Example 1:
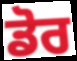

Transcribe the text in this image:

ਡੋਰ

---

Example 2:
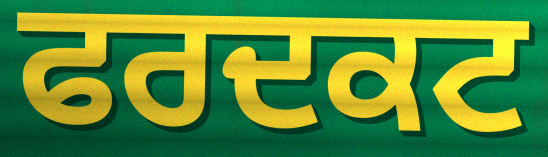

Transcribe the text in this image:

ਫਰਦਕਟ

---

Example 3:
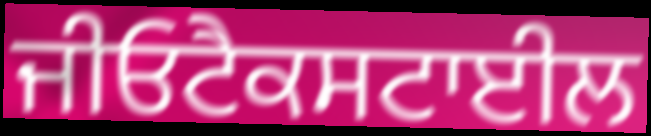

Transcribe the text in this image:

ਜੀਓਟੈਕਸਟਾਈਲ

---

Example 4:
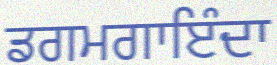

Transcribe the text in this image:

ਡਗਮਗਾਇੰਦਾ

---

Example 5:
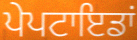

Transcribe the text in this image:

ਪੇਪਟਾਇਡਾਂ